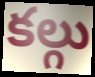
కల్గు